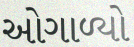
ઓગાળ્યો